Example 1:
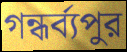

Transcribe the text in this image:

গন্ধর্ব্যপুর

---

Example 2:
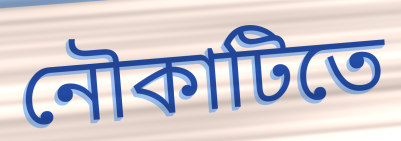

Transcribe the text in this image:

নৌকাটিতে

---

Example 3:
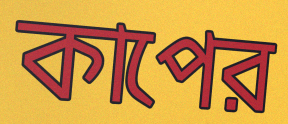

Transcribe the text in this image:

কাপের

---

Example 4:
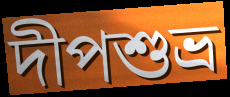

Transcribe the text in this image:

দীপশুভ্র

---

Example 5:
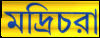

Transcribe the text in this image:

মদ্রিচরা